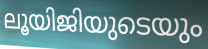
ലൂയിജിയുടെയും